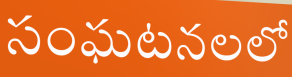
సంఘటనలలో